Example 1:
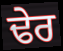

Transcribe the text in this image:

ਢੇਰ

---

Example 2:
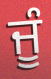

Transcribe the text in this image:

ਜੂੰ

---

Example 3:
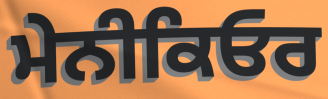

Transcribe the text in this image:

ਮੇਨੀਕਿਓਰ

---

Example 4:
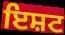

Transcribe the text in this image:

ਇਸ਼ਟ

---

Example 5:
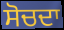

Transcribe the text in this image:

ਸੋਚਦਾ